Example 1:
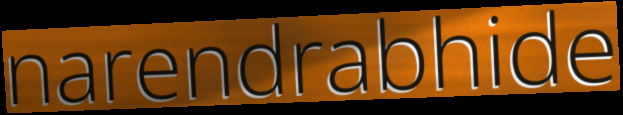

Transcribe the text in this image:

narendrabhide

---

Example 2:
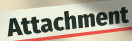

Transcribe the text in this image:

Attachment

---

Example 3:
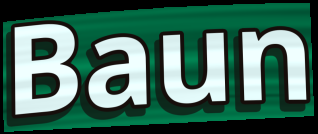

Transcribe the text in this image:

Baun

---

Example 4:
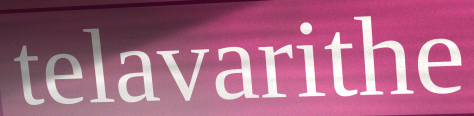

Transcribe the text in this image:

telavarithe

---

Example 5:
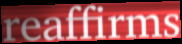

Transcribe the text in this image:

reaffirms